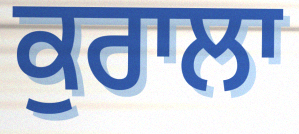
ਕੁਰਾਲਾ